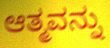
ಆತ್ಮವನ್ನು